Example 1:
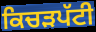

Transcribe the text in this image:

ਕਿਚੜਪੱਟੀ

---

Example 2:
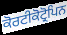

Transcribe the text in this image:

ਕੋਰਟੀਕੋਟ੍ਰੋਪਿਨ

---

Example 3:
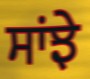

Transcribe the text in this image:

ਸਾਂਝੇ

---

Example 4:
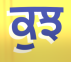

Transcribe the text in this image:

ਕੁਝ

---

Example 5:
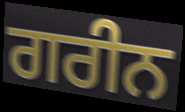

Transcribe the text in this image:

ਗਰੀਨ